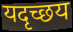
यदृच्छय